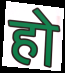
हो